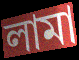
লামা